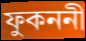
ফুকননী